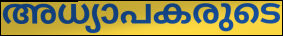
അധ്യാപകരുടെ